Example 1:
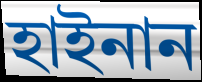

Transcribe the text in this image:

হাইনান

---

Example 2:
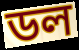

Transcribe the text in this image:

ডল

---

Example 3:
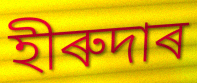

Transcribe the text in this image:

হীৰুদাৰ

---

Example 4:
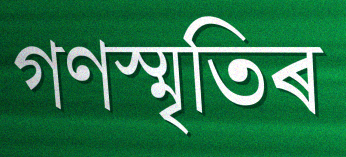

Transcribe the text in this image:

গণস্মৃতিৰ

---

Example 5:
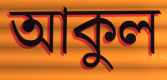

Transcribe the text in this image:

আকুল